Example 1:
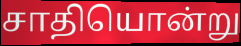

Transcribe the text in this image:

சாதியொன்று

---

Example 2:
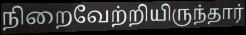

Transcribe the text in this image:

நிறைவேற்றியிருந்தார்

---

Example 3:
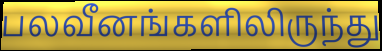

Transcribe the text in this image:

பலவீனங்களிலிருந்து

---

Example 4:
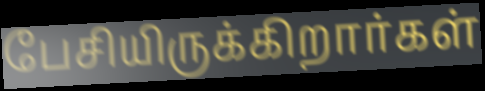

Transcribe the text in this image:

பேசியிருக்கிறார்கள்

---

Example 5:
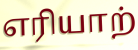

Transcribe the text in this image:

எரியாற்